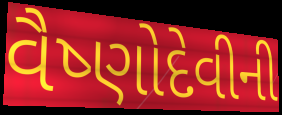
વૈષ્ણોદેવીની